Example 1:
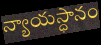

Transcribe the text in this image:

న్యాయస్ధానం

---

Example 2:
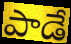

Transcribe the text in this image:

పాడే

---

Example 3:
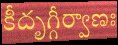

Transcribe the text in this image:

కీదృగ్గీర్వాణః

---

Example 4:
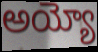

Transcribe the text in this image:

అయ్యో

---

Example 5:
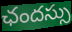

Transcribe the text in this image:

ఛందస్సు